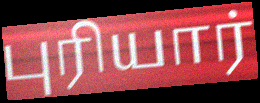
புரியார்